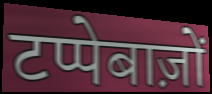
टप्पेबाज़ों